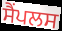
ਸੈਂਪਲਸ